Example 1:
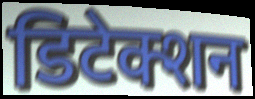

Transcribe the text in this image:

डिटेक्शन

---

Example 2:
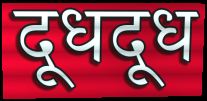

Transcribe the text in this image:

दूधदूध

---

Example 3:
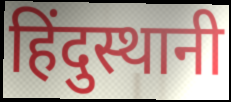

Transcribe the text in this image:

हिंदुस्थानी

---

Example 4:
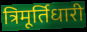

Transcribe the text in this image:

त्रिमूर्तिधारी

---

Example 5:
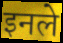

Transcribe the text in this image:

इनले